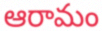
ఆరామం